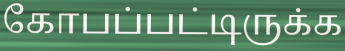
கோபப்பட்டிருக்க